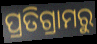
ପ୍ରତିଗ୍ରାମରୁ